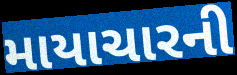
માયાચારની